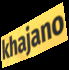
khajano